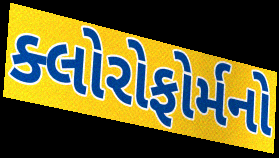
ક્લોરોફોર્મનો